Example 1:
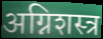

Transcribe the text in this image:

अग्निशस्त्र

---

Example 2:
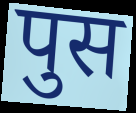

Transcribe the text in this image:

पुस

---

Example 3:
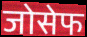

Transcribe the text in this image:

जोसेफ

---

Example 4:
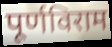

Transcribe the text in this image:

पूर्णविराम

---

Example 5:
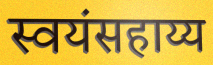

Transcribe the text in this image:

स्वयंसहाय्य